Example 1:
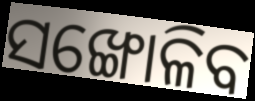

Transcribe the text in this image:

ସଙ୍ଖୋଳିବ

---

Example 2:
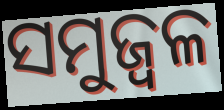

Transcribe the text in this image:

ସମୁଜ୍ୱଳ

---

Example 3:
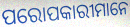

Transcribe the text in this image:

ପରୋପକାରୀମାନେ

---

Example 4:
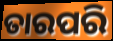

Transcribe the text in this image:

ତାରପରି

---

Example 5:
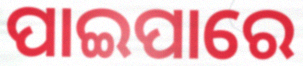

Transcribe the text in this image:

ପାଇପାରେ